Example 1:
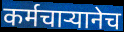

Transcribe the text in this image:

कर्मचाऱ्यानेच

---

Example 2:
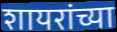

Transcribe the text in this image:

शायरांच्या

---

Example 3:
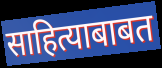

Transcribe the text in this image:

साहित्याबाबत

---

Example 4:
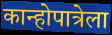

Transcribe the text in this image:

कान्होपात्रेला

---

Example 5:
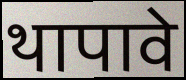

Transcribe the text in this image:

थापावे